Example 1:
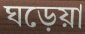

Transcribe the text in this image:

ঘড়েয়া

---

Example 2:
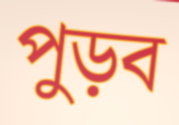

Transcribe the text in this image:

পুড়ব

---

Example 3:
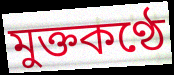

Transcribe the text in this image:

মুক্তকণ্ঠে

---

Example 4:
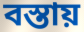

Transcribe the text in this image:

বস্তায়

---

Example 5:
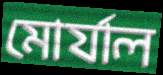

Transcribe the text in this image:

মোর্যাল